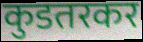
कुडतरकर